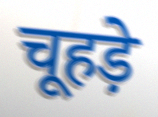
चूहड़े